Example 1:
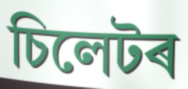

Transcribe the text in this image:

চিলেটৰ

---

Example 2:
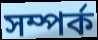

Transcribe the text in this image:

সম্পৰ্ক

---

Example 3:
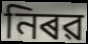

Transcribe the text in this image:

নিৰৱ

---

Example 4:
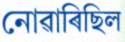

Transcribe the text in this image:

নোৱাৰিছিল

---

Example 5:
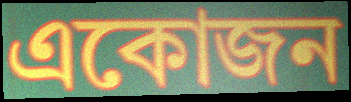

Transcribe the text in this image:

একোজন